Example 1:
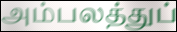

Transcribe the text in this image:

அம்பலத்துப்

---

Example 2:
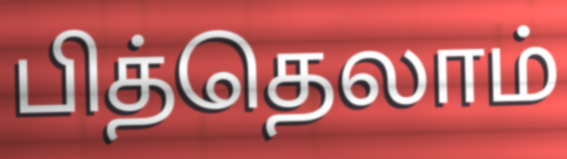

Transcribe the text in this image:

பித்தெலாம்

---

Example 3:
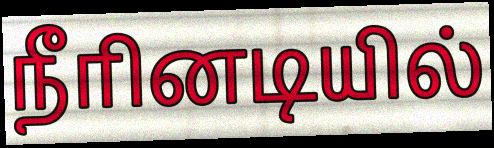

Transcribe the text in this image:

நீரினடியில்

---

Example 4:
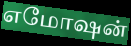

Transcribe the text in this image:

எமோஷன்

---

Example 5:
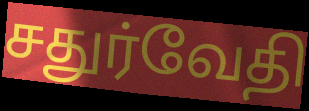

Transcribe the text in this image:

சதுர்வேதி